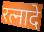
रत्नादे